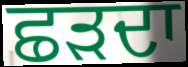
ਛੜਦਾ